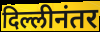
दिल्लीनंतर